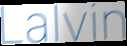
Lalvin